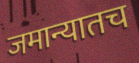
जमान्यातच